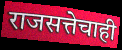
राजसत्तेचाही